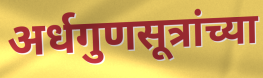
अर्धगुणसूत्रांच्या